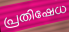
പ്രതിഷേധ